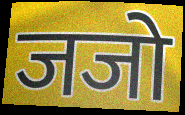
जजो